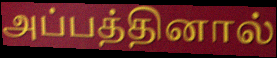
அப்பத்தினால்